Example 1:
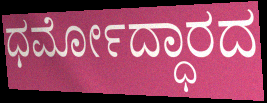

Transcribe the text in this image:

ಧರ್ಮೋದ್ಧಾರದ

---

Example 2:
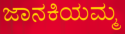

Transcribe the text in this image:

ಜಾನಕಿಯಮ್ಮ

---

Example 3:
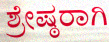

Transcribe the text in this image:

ಶ್ರೇಷ್ಠರಾಗಿ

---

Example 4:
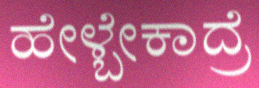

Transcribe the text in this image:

ಹೇಳ್ಬೇಕಾದ್ರೆ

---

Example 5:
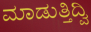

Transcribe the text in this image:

ಮಾಡುತ್ತಿದ್ವಿ